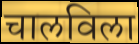
चालविला